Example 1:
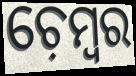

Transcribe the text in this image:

ଚ଼େମ୍ୱର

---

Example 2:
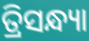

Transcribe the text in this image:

ତ୍ରିସନ୍ଧ୍ୟା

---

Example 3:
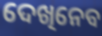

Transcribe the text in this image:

ଦେଖିନେବ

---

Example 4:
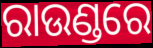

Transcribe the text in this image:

ରାଉଣ୍ଡରେ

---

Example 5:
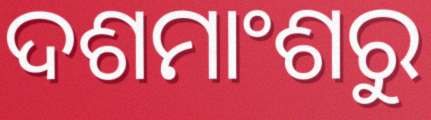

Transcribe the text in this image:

ଦଶମାଂଶରୁ